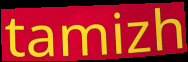
tamizh